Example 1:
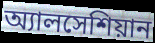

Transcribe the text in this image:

অ্যালসেশিয়ান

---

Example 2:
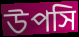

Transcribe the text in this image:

উপসি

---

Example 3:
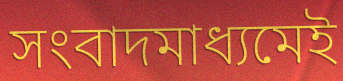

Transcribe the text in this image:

সংবাদমাধ্যমেই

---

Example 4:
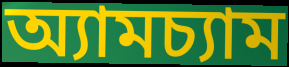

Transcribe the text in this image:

অ্যামচ্যাম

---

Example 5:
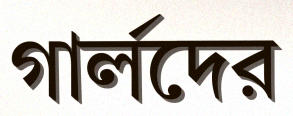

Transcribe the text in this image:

গার্লদের